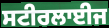
ਸਟੀਰਲਾਈਜ